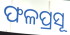
ଫଳପ୍ରସୂ